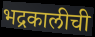
भद्रकालीची